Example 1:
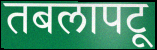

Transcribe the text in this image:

तबलापटू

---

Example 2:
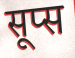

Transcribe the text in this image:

सूप्स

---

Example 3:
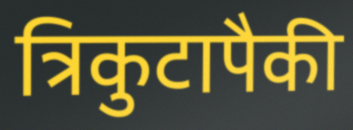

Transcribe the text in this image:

त्रिकुटापैकी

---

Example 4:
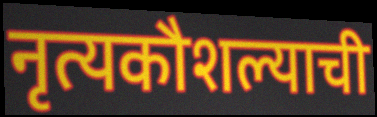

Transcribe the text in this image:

नृत्यकौशल्याची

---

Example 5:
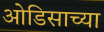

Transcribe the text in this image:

ओडिसाच्या